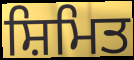
ਸ਼ਿਮਿਤ